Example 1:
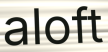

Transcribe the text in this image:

aloft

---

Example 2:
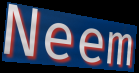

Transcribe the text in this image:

Neem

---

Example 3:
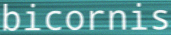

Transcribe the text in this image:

bicornis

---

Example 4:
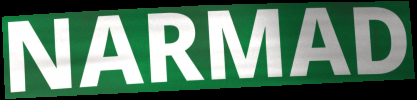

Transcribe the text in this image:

NARMAD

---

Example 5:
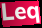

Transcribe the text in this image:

Leq